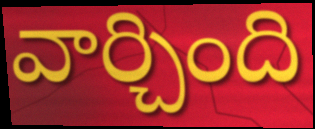
వార్చింది